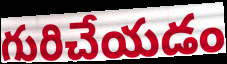
గురిచేయడం